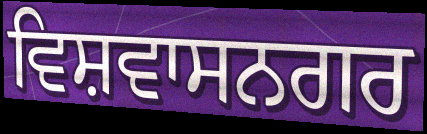
ਵਿਸ਼ਵਾਸਨਗਰ